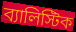
ব্যালিস্টিক